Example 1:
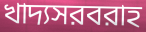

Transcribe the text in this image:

খাদ্যসরবরাহ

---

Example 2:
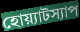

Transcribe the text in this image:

হোয়্যাটস্যাপ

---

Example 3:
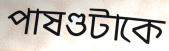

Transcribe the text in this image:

পাষণ্ডটাকে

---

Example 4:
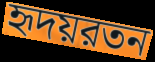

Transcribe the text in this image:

হৃদয়রতন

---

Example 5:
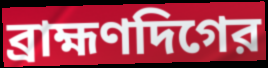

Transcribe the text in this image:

ব্রাহ্মণদিগের